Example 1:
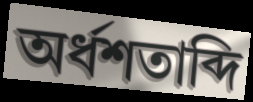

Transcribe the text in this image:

অর্ধশতাব্দি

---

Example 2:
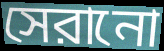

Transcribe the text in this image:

সেরানো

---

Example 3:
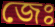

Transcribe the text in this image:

জেঃ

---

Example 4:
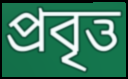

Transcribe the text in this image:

প্রবৃত্ত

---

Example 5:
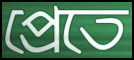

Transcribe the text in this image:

প্রেতে